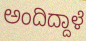
ಅಂದಿದ್ದಾಳೆ